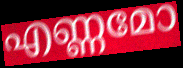
എണ്ണമോ